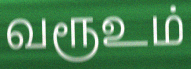
வரூஉம்